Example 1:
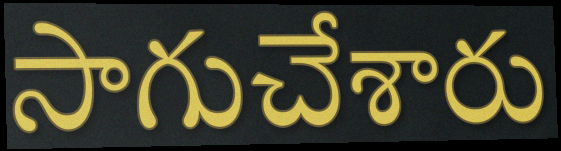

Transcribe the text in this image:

సాగుచేశారు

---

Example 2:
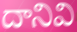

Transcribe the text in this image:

దానివి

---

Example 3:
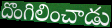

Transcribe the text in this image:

దొంగిలించాడు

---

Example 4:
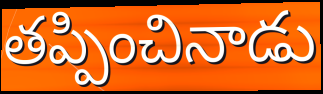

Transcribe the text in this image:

తప్పించినాడు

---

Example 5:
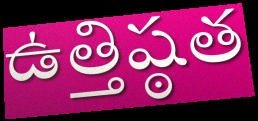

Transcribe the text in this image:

ఉత్తిష్ఠత